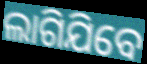
ଲାଗିଯିବେ